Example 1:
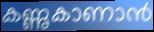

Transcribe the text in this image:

കണ്ണുകാണാൻ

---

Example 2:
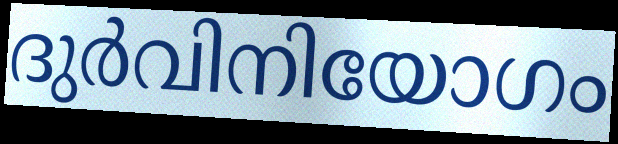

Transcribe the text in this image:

ദുർവിനിയോഗം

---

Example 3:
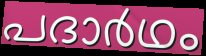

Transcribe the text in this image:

പദാർഥം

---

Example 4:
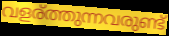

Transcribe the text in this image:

വളര്ത്തുന്നവരുണ്ട്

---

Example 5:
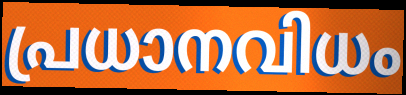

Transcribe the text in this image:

പ്രധാനവിധം